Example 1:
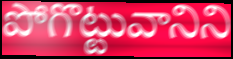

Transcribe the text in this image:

పోగొట్టువానిని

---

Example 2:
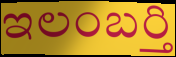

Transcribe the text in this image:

ఇలంబర్తి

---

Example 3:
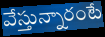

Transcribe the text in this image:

వేస్తున్నారంటే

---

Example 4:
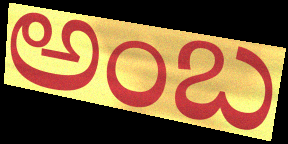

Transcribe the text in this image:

అంబ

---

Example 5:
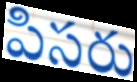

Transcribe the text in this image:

పిసరు